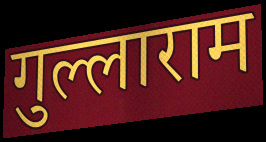
गुल्लाराम